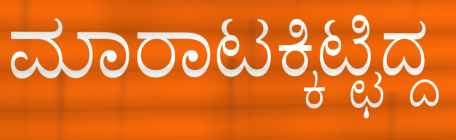
ಮಾರಾಟಕ್ಕಿಟ್ಟಿದ್ದ